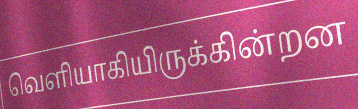
வெளியாகியிருக்கின்றன